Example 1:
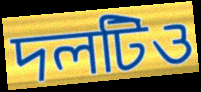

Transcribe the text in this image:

দলটিও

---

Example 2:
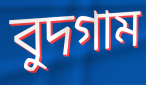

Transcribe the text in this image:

বুদগাম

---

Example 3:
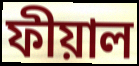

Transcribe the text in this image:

ফীয়াল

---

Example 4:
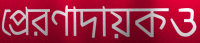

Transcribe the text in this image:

প্রেরণাদায়কও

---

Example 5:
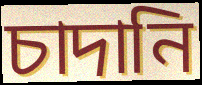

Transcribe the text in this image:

চাদানি